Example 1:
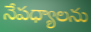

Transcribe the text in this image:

నేపధ్యాలను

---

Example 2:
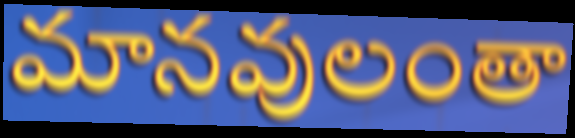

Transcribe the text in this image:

మానవులంతా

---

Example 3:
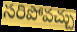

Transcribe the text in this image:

సరిపోవచ్చు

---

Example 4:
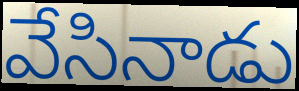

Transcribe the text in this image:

వేసినాడు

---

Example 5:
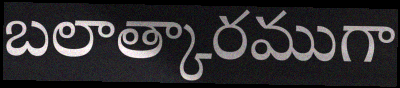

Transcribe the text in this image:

బలాత్కారముగా